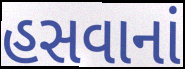
હસવાનાં